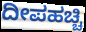
ದೀಪಹಚ್ಚಿ